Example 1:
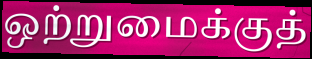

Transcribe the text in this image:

ஒற்றுமைக்குத்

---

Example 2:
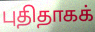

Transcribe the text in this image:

புதிதாகக்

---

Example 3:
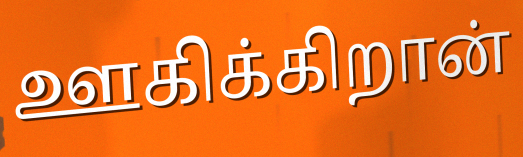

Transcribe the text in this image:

ஊகிக்கிறான்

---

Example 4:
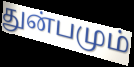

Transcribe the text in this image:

துன்பமும்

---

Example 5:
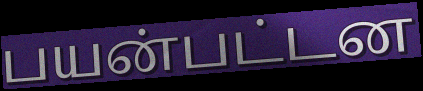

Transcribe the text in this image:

பயன்பட்டன